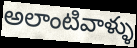
అలాంటివాళ్ళు